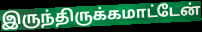
இருந்திருக்கமாட்டேன்